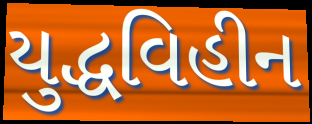
યુદ્ધવિહીન